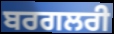
ਬਰਗਲਰੀ